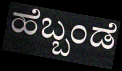
ಹೆಬ್ಬಂಡೆ